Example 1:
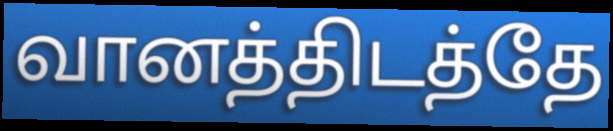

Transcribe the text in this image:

வானத்திடத்தே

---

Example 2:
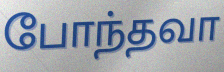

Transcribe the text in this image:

போந்தவா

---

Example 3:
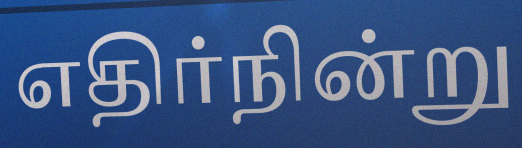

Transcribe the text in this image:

எதிர்நின்று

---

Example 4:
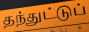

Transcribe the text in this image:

தந்துட்டுப்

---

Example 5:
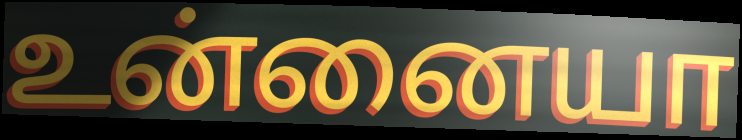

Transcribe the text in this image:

உன்னையா